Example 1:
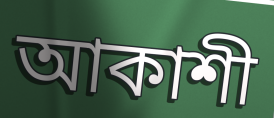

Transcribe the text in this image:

আকাশী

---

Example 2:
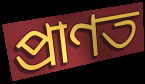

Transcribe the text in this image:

প্ৰাণত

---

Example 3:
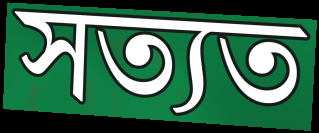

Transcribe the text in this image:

সত্যত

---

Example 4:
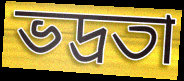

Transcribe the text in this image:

ভদ্ৰতা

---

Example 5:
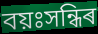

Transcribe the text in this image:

বয়ঃসন্ধিৰ